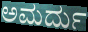
ಅಮರ್ದು